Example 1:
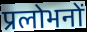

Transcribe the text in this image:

प्रलोभनों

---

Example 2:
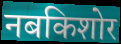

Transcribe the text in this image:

नबकिशोर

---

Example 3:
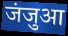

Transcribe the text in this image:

जंजुआ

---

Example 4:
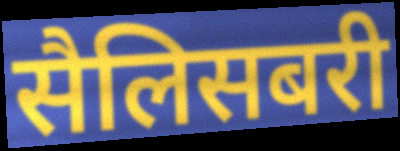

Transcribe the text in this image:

सैलिसबरी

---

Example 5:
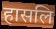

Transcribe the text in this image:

हासलि